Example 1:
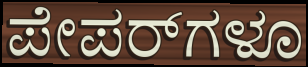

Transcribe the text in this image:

ಪೇಪರ್‌ಗಳೂ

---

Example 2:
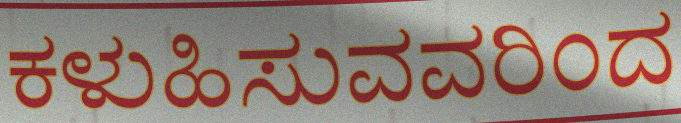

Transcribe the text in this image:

ಕಳುಹಿಸುವವರಿಂದ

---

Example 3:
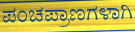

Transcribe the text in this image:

ಪಂಚಪ್ರಾಣಗಳಾಗಿ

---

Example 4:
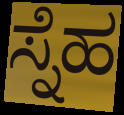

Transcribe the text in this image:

ಸ್ನೆಹ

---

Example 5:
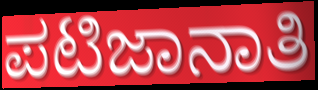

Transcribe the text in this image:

ಪಟಿಜಾನಾತಿ